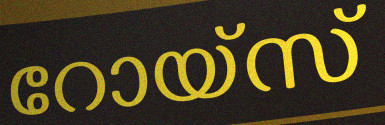
റോയ്സ്